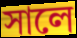
সালে